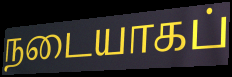
நடையாகப்